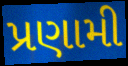
પ્રણામી